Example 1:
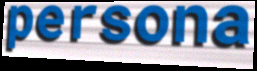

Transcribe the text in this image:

persona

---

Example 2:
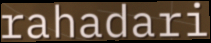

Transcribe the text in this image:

rahadari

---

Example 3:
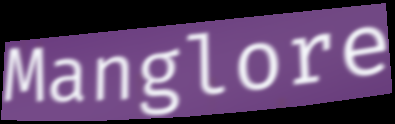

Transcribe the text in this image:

Manglore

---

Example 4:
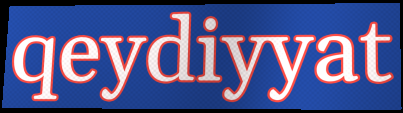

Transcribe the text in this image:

qeydiyyat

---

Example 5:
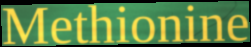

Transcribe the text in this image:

Methionine